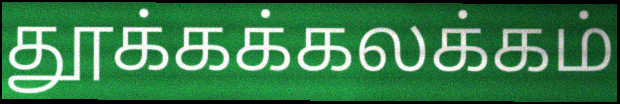
தூக்கக்கலக்கம்